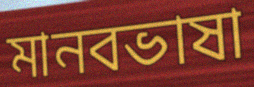
মানবভাষা